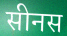
सीनस